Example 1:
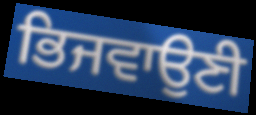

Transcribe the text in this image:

ਭਿਜਵਾਉਣੀ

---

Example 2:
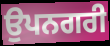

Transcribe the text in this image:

ਉਪਨਗਰੀ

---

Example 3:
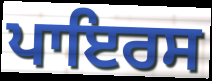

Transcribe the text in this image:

ਪਾਇਰਸ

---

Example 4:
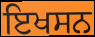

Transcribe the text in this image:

ਇਖਸਨ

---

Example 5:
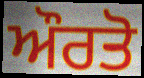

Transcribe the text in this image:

ਔਰਤੋ